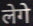
लेगे